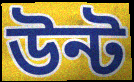
উন্ট